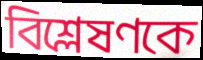
বিশ্লেষণকে